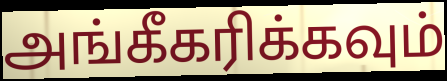
அங்கீகரிக்கவும்